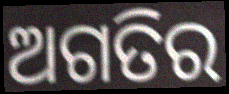
ଅଗତିର